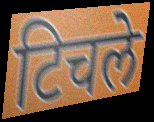
टिचले